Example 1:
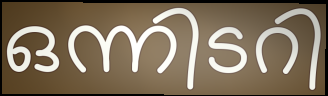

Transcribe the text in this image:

ഒന്നിടറി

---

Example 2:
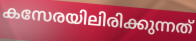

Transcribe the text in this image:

കസേരയിലിരിക്കുന്നത്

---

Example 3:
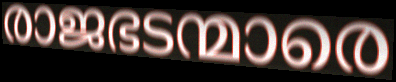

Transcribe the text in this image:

രാജഭടന്മാരെ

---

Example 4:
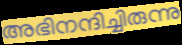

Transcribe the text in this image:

അഭിനന്ദിച്ചിരുന്നു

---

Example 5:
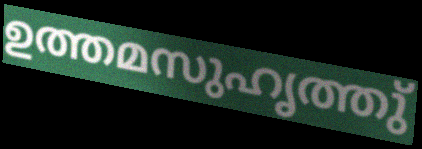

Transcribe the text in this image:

ഉത്തമസുഹൃത്തു്